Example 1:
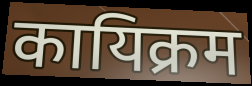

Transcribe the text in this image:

कायिक्रम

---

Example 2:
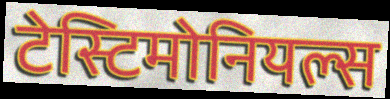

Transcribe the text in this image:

टेस्टिमोनियल्स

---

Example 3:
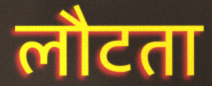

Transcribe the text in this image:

लौटता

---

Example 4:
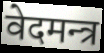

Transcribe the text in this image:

वेदमन्त्र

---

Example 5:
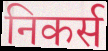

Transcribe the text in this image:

निकर्स